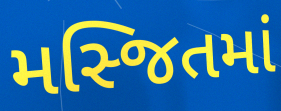
મસ્જિતમાં